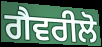
ਗੈਵਰੀਲੋ